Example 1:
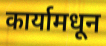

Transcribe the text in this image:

कार्यामधून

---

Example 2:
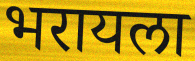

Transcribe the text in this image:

भरायला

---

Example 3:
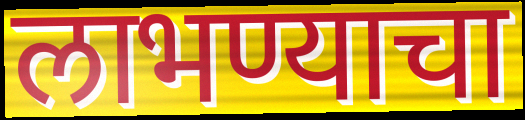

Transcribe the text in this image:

लाभण्याचा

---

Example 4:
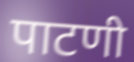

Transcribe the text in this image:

पाटणी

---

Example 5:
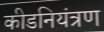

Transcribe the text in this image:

कीडनियंत्रण